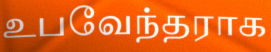
உபவேந்தராக